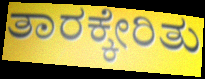
ತಾರಕ್ಕೇರಿತು